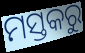
ମସ୍ତକରୁ